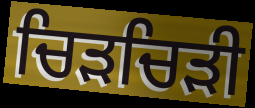
ਚਿੜਚਿੜੀ